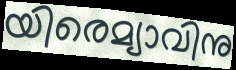
യിരെമ്യാവിനു